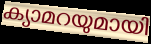
ക്യാമറയുമായി